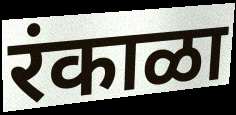
रंकाळा